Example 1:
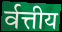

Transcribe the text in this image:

र्वत्तीय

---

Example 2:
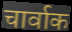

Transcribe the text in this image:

चार्वाक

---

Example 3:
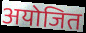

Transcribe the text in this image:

अयोजित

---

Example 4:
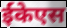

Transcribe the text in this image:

ईकेएस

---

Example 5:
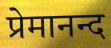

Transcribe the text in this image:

प्रेमानन्द